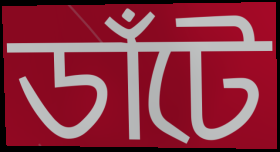
ডাঁটে